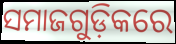
ସମାଜଗୁଡ଼ିକରେ